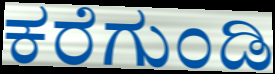
ಕರೆಗುಂಡಿ